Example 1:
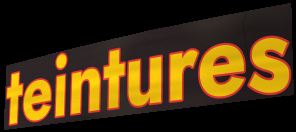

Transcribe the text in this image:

teintures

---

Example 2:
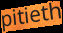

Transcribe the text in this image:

pitieth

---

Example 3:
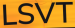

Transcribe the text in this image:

LSVT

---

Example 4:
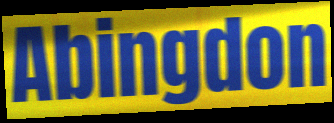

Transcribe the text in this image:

Abingdon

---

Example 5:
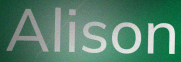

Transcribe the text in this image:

Alison